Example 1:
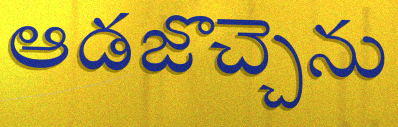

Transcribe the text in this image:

ఆడజొచ్చెను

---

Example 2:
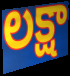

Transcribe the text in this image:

లక్షా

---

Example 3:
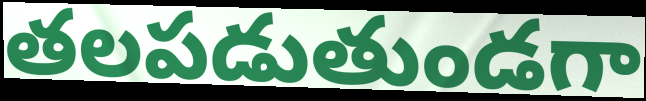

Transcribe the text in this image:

తలపడుతుండగా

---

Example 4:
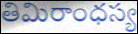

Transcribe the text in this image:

తిమిరాంధస్య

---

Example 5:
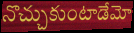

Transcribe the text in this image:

నొచ్చుకుంటాడేమో